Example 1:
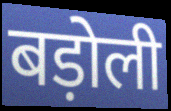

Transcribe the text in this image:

बड़ोली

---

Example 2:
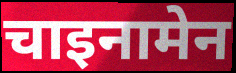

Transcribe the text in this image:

चाइनामेन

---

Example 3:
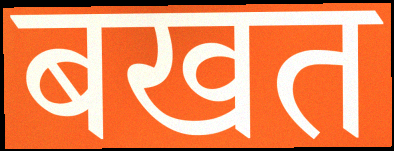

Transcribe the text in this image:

बखत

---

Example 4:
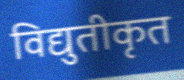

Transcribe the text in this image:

विद्युतीकृत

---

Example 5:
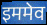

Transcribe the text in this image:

इममेव